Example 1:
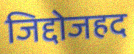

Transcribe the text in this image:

जिद्दोजहद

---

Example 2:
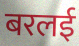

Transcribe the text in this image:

बरलई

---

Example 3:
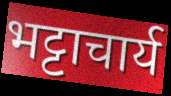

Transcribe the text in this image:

भट्टाचार्य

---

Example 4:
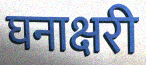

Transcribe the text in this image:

घनाक्षरी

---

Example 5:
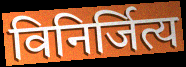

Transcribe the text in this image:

विनिर्जित्य